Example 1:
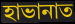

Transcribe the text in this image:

হাভানাত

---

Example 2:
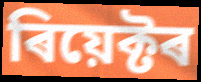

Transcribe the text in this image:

ৰিয়েক্টৰ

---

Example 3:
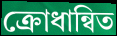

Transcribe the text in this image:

ক্ৰোধান্বিত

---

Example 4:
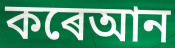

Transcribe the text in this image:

কৰেআন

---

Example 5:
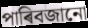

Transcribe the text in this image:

পাৰিবজানো